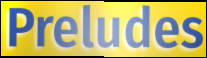
Preludes